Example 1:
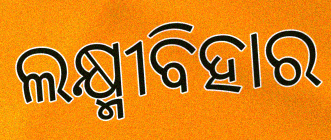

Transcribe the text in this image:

ଲକ୍ଷ୍ମୀବିହାର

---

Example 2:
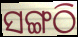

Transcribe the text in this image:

ସଙ୍ଗଠି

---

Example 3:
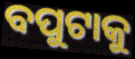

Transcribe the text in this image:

ବପୁଟାକୁ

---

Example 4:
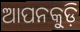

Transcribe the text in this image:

ଆପନକୁଡ଼ି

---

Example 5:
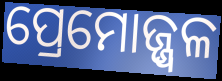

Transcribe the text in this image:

ପ୍ରେମୋଜ୍ଜ୍ୱଳ